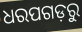
ଧରପଗଡ଼ରୁ